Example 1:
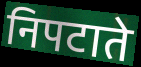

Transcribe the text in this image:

निपटाते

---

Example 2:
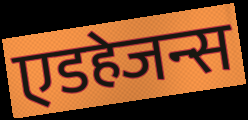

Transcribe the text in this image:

एडहेजन्स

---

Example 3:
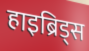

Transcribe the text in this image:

हाइब्रिड्स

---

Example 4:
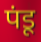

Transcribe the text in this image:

पंडू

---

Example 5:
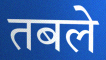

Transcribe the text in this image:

तबले